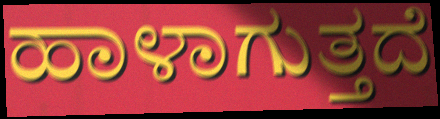
ಹಾಳಾಗುತ್ತದೆ